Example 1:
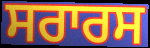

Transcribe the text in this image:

ਸਰਾਰਸ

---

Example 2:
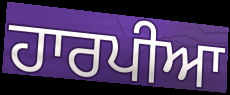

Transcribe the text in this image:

ਹਾਰਪੀਆ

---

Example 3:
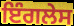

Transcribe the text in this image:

ਇੰਗਲੇਸ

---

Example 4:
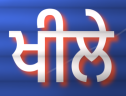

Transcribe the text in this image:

ਖੀਲੇ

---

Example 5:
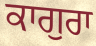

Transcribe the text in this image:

ਕਾਗੁਰਾ